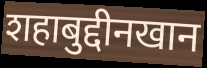
शहाबुद्दीनखान